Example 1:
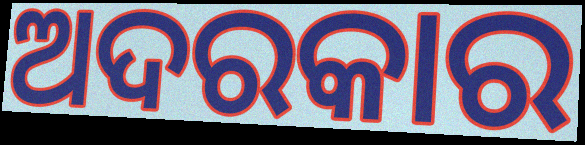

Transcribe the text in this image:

ଅଦରକାର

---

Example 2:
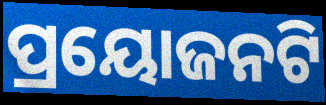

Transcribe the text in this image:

ପ୍ରୟୋଜନଟି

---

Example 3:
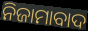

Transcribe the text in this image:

ନିଜାମାବାଦ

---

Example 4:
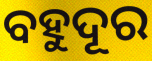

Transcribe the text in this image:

ବହୁଦୂର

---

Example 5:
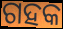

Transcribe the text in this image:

ଗହକ